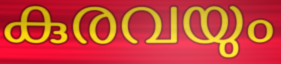
കുരവയും